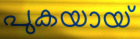
പുകയായ്